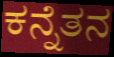
ಕನ್ನೆತನ